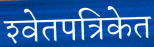
श्वेतपत्रिकेत